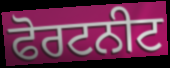
ਫੋਰਟਨੀਟ